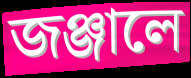
জঞ্জালে